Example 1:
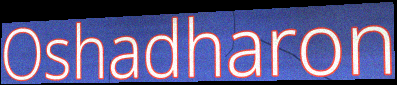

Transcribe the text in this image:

Oshadharon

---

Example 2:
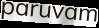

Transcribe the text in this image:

paruvam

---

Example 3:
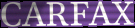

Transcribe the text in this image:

CARFAX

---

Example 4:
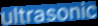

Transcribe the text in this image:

ultrasonic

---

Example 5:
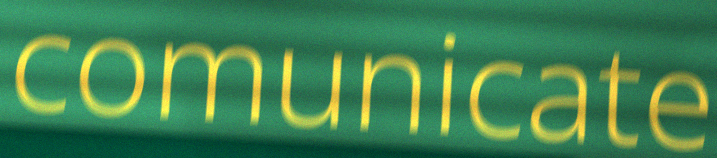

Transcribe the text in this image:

comunicate